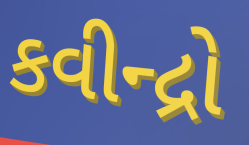
કવીન્દ્રો